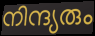
നിന്ദ്യരും